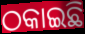
ଠକାଇଛି